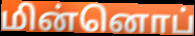
மின்னொப்